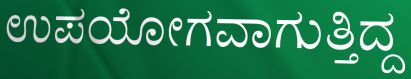
ಉಪಯೋಗವಾಗುತ್ತಿದ್ದ